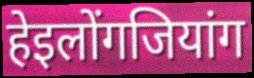
हेइलोंगजियांग